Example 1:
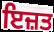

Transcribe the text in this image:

ਇਜ਼ਤ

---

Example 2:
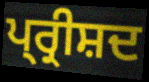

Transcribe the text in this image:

ਪ੍ਰ੍ਰੀਸ਼ਦ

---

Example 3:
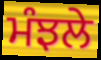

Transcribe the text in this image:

ਮੰਝਲੇ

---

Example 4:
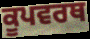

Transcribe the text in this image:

ਕੂਪਵਰਥ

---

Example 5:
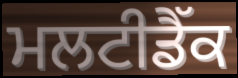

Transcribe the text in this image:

ਮਲਟੀਡੈੱਕ